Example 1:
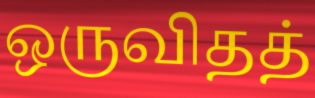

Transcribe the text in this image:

ஒருவிதத்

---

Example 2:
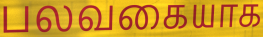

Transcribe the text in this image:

பலவகையாக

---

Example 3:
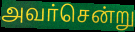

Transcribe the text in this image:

அவர்சென்று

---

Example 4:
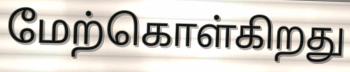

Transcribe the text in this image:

மேற்கொள்கிறது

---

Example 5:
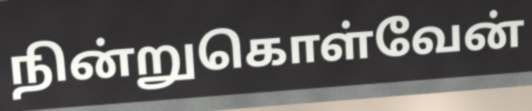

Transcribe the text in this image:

நின்றுகொள்வேன்